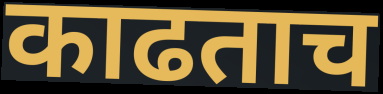
काढताच